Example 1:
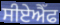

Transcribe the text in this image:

ਸੀਏਐੱਫ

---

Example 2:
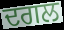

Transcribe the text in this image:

ਦਗਲ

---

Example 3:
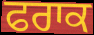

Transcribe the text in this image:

ਫਰਾਕ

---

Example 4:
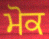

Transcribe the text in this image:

ਮੋਕ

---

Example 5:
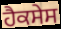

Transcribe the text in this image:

ਹੈਕਸੇਸ